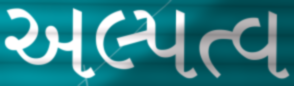
અલ્પત્વ